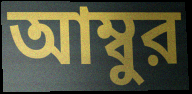
আম্বুর